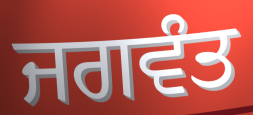
ਜਗਵੰਤ